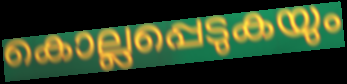
കൊല്ലപ്പെടുകയും